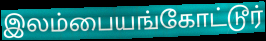
இலம்பையங்கோட்டூர்